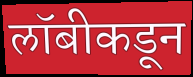
लॉबीकडून